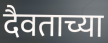
दैवताच्या